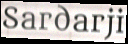
Sardarji